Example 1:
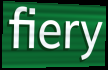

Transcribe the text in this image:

fiery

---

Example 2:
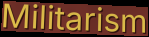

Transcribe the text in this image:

Militarism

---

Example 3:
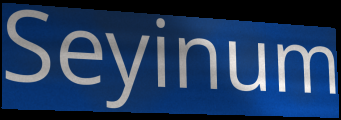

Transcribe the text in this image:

Seyinum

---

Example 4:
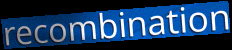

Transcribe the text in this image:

recombination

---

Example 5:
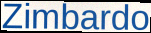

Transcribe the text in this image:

Zimbardo